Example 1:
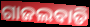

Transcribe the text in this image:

ଗାଜଲବାଡି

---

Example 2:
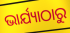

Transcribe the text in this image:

ଭାର୍ଯ୍ୟାଠାରୁ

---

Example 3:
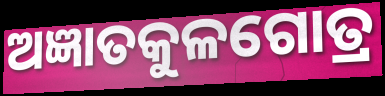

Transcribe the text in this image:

ଅଜ୍ଞାତକୁଳଗୋତ୍ର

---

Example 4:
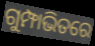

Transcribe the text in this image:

ଗୁମ୍ଫାଭିତରେ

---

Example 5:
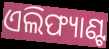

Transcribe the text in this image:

ଏଲିଫ୍ୟାଣ୍ଟ